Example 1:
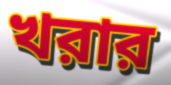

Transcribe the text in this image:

খরার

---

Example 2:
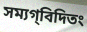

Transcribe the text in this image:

সম্যগ্‌বিদিতং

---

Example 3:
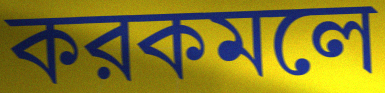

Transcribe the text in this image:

করকমলে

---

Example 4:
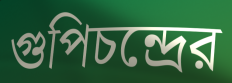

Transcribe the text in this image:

গুপিচন্দ্রের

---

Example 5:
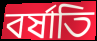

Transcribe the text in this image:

বর্ষাতি